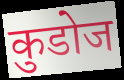
कुडोज